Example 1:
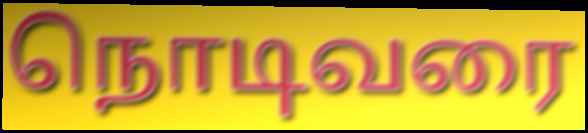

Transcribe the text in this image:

நொடிவரை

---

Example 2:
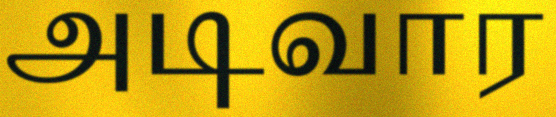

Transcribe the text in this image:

அடிவார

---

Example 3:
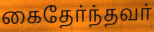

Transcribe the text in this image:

கைதேர்ந்தவர்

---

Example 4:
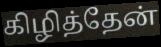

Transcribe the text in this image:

கிழித்தேன்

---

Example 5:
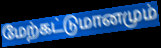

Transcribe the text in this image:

மேற்கட்டுமானமும்